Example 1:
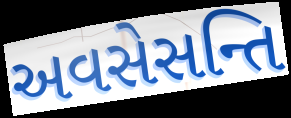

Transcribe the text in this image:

અવસેસન્તિ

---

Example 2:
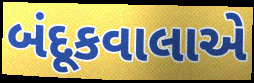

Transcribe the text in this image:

બંદૂકવાલાએ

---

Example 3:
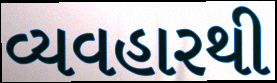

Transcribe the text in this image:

વ્યવહારથી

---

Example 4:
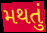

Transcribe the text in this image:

મથતું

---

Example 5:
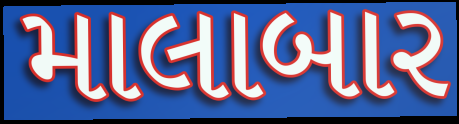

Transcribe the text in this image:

માલાબાર